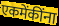
एकमेंकींना